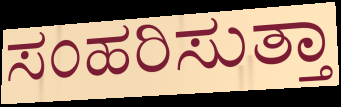
ಸಂಹರಿಸುತ್ತಾ